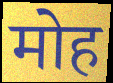
मोह